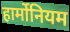
हार्मोनियम